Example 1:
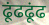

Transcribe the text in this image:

ढूंढढूंढ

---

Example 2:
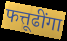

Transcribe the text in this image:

फत्तूढींगा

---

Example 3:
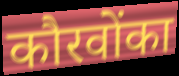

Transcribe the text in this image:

कौरवोंका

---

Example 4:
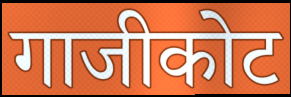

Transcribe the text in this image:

गाजीकोट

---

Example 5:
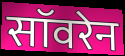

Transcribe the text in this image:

सॉवरेन